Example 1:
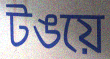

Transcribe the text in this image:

টঙয়ে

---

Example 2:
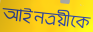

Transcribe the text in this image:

আইনত্রয়ীকে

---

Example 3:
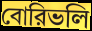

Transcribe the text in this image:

বোরিভলি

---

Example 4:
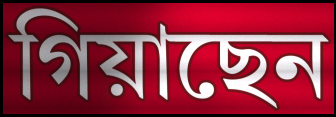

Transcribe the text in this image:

গিয়াছেন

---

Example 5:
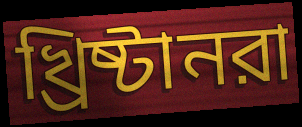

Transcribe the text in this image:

খ্রিষ্টানরা